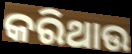
କରିଥାଉ